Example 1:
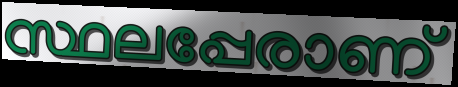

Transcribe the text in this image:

സ്ഥലപ്പേരാണ്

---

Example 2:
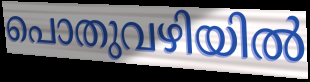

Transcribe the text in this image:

പൊതുവഴിയിൽ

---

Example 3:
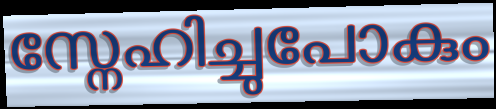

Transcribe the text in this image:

സ്നേഹിച്ചുപോകും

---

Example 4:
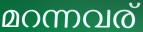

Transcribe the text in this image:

മറന്നവര്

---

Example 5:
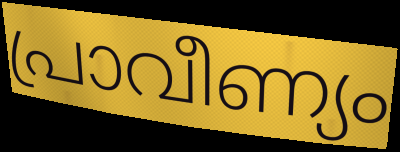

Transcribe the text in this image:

പ്രാവീണ്യം